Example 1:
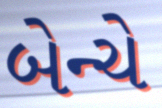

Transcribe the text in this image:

બેન્ચે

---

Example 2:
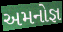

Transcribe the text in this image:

અમનોજ્ઞ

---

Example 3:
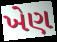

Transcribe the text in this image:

ખેણ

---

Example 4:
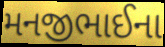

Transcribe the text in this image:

મનજીભાઈના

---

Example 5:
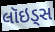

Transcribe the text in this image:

લૉઇડ્સ